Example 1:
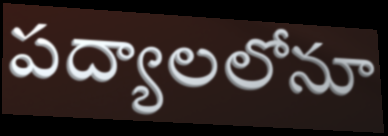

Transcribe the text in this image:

పద్యాలలోనూ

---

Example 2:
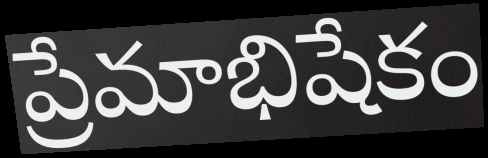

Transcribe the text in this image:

ప్రేమాభిషేకం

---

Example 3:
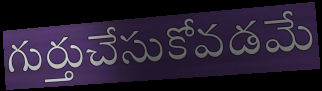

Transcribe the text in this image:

గుర్తుచేసుకోవడమే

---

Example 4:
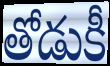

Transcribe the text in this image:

తోడుకీ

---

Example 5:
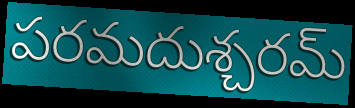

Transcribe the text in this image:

పరమదుశ్చరమ్